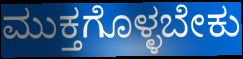
ಮುಕ್ತಗೊಳ್ಳಬೇಕು